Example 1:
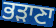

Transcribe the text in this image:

ਭੜਾਣਾ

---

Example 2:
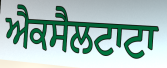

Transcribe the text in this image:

ਐਕਸੈਲਟਾਟਾ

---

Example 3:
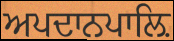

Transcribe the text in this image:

ਅਪਦਾਨਪਾਲ਼ਿ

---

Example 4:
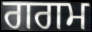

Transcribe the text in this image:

ਗਗਮ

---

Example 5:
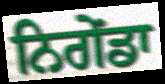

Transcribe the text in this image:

ਨਿਗੇਂਡਾ